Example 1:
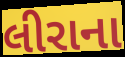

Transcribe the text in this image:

લીરાના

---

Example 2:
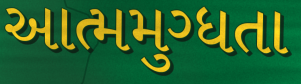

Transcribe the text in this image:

આત્મમુગ્ધતા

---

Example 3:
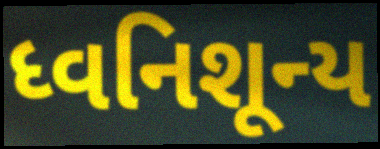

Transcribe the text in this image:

ધ્વનિશૂન્ય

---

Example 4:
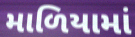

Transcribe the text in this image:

માળિયામાં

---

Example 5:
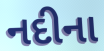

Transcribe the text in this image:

નદીના